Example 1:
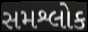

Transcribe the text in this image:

સમશ્લોક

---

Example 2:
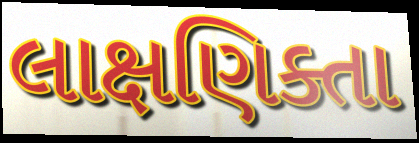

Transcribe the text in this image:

લાક્ષણિક્તા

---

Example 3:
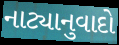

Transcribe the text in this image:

નાટ્યાનુવાદો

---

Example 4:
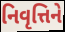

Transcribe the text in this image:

નિવૃત્તિને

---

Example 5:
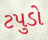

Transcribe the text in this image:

ટપુડો